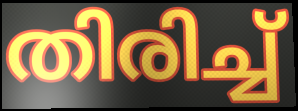
തിരിച്ച്